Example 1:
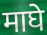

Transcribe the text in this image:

माघे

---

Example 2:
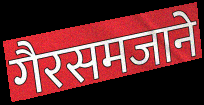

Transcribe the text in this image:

गैरसमजाने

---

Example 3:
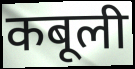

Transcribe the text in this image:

कबूली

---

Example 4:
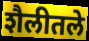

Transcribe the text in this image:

शैलीतले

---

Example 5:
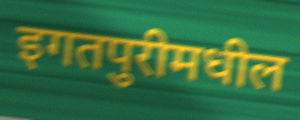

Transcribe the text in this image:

इगतपुरीमधील